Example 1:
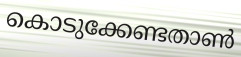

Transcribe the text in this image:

കൊടുക്കേണ്ടതാൺ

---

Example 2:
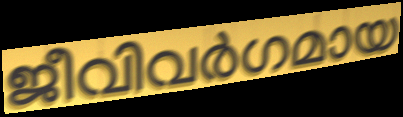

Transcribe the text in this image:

ജീവിവർഗമായ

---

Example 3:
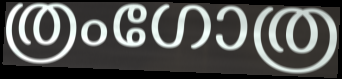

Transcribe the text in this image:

ത്രംഗോത്ര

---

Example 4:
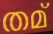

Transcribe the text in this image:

തമ്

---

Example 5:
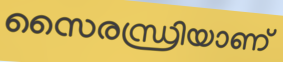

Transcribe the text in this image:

സൈരന്ധ്രിയാണ്